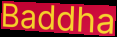
Baddha